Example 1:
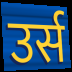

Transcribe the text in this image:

उर्स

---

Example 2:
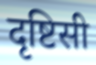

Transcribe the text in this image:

दृष्टिसी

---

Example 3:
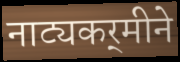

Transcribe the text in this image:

नाट्यकर्मीने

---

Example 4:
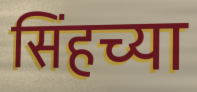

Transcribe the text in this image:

सिंहच्या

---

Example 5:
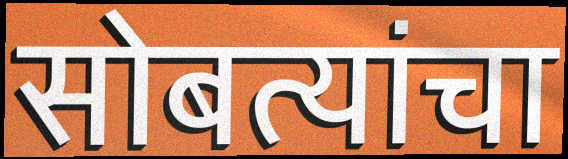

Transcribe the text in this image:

सोबत्यांचा